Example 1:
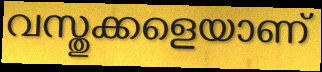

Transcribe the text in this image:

വസ്തുക്കളെയാണ്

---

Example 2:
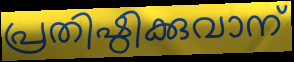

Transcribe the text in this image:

പ്രതിഷ്ഠിക്കുവാന്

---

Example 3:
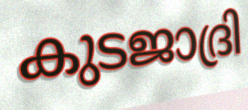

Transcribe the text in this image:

കുടജാദ്രി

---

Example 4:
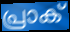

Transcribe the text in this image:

പ്രാക്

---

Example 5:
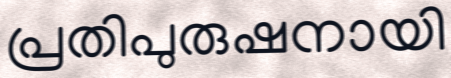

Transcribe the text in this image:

പ്രതിപുരുഷനായി